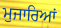
ਮੁਜਾਰਿਆਂ